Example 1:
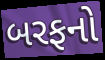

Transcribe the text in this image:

બરફનો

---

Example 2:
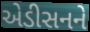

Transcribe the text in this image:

એડીસનને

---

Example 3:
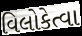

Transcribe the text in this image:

વિલોકેત્વા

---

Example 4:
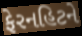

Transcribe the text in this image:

ફેરનહિટને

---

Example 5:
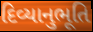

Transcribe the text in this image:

દિવ્યાનુભૂતિ